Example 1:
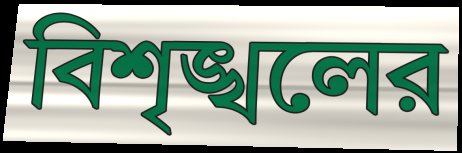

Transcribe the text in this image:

বিশৃঙ্খলের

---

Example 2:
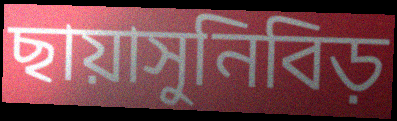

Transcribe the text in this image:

ছায়াসুনিবিড়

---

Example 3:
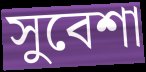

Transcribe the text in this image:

সুবেশা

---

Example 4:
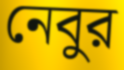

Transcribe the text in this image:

নেবুর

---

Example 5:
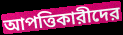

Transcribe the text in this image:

আপত্তিকারীদের